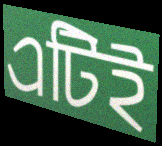
এটিই